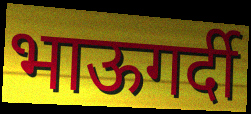
भाऊगर्दी